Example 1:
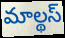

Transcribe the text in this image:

మాల్థస్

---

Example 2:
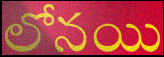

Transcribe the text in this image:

లోనయి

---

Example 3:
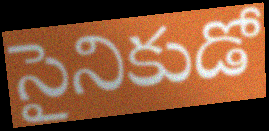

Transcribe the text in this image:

సైనికుడో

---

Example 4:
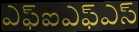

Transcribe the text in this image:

ఎఫ్ఐఎఫ్ఎస్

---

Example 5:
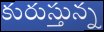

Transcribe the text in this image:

కురుస్తున్న